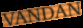
VANDAN